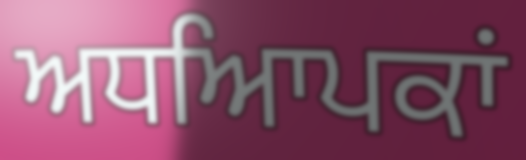
ਅਧਆਿਪਕਾਂ